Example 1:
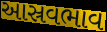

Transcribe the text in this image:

આસ્રવભાવ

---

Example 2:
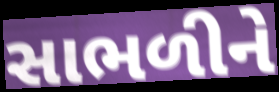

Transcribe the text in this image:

સાભળીને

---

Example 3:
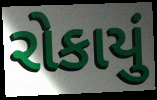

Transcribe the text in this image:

રોકાયું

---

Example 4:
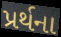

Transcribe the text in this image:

પ્રર્થના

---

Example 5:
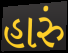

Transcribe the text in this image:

હારું